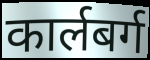
कार्लबर्ग